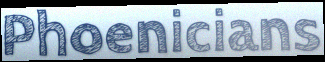
Phoenicians